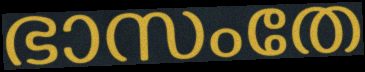
ഭാസംതേ